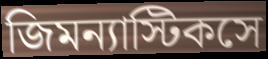
জিমন্যাস্টিকসে